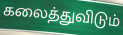
கலைத்துவிடும்